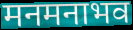
मनमनाभव